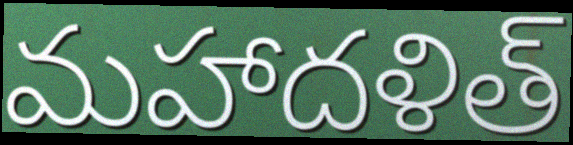
మహాదళిత్